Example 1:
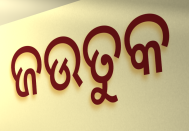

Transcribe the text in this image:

ଜଉତୁକ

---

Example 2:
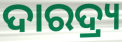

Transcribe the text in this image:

ଦାରଦ୍ର୍ୟ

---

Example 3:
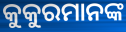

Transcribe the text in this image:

କୁକୁରମାନଙ୍କ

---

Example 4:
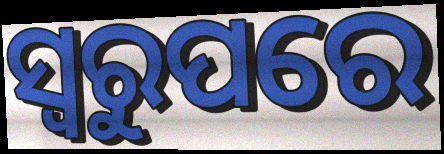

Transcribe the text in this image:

ସ୍ୱରୁପରେ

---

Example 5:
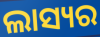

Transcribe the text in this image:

ଲାସ୍ୟର